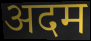
अदम